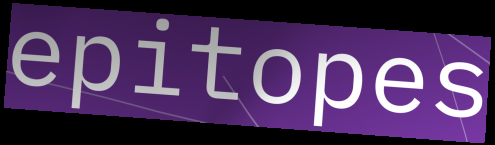
epitopes